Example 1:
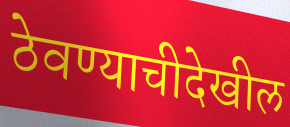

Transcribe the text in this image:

ठेवण्याचीदेखील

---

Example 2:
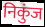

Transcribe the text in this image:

निकुंज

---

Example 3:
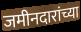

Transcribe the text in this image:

जमीनदारांच्या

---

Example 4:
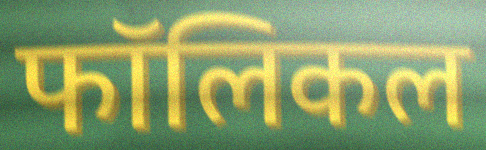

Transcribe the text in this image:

फॉलिकल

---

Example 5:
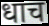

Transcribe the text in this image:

धाच